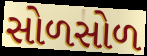
સોળસોળ